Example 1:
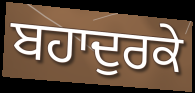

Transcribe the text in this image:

ਬਹਾਦੁਰਕੇ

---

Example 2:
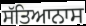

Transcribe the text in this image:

ਸੱਤਿਆਨਾਸ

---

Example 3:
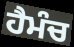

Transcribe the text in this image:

ਹੈਮੰਚ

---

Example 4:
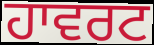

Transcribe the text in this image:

ਹਾਵਰਟ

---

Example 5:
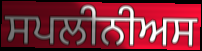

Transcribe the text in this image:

ਸਪਲੀਨੀਅਸ